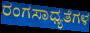
ರಂಗಸಾಧ್ಯತೆಗಳ